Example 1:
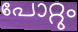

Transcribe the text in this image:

പോറ്റും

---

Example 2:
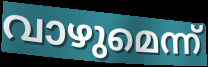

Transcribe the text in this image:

വാഴുമെന്ന്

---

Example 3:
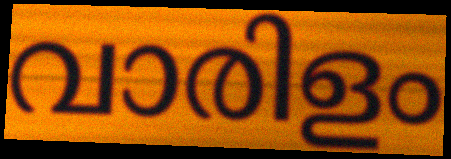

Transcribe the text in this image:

വാരിളം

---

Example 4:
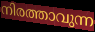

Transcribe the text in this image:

നിരത്താവുന്ന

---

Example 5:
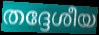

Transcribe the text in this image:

തദ്ദേശീയ